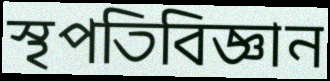
স্থপতিবিজ্ঞান